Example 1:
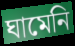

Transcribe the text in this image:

ঘামেনি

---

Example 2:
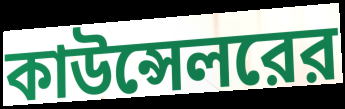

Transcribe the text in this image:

কাউন্সেলরের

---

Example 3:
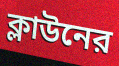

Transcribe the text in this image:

ক্লাউনের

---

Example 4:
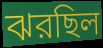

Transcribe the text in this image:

ঝরছিল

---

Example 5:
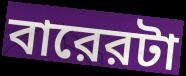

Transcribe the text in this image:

বারেরটা